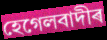
হেগেলবাদীৰ